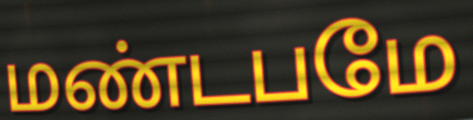
மண்டபமே